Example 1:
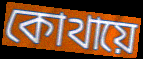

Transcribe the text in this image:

কোথায়ে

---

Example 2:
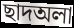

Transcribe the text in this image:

ছাদঅলা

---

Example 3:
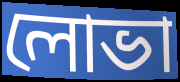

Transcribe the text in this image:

লোভা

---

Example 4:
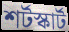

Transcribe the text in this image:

শর্টস্কার্ট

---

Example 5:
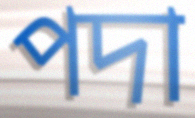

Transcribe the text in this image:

পদা